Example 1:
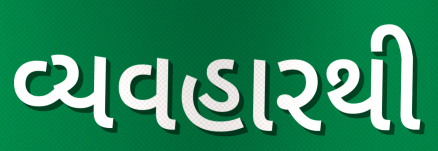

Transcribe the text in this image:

વ્યવહારથી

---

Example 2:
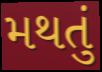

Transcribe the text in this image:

મથતું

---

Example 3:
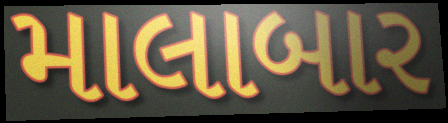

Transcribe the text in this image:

માલાબાર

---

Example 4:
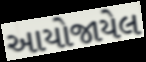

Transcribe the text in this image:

આયોજાયેલ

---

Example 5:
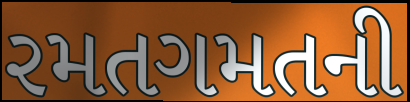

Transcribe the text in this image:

રમતગમતની